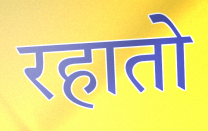
रहातो